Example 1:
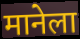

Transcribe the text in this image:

मानेला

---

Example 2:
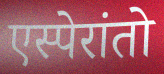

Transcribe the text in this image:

एस्पेरांतो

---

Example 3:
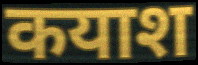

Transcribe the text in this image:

कयाश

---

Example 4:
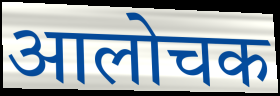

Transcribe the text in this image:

आलोचक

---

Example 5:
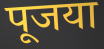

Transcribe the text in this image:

पूजया